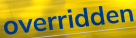
overridden